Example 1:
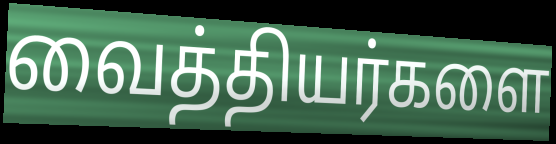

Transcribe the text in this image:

வைத்தியர்களை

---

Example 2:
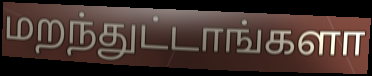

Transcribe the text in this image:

மறந்துட்டாங்களா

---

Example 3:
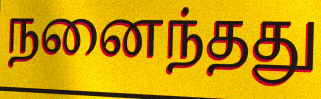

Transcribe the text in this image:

நனைந்தது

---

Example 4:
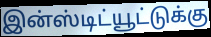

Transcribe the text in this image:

இன்ஸ்டிட்யூட்டுக்கு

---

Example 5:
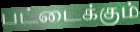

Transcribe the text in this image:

பட்டைக்கும்